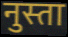
नुस्ता